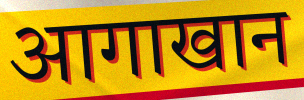
आगाखान